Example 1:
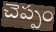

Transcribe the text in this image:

చెప్పం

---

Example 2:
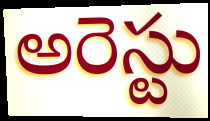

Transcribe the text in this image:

అరెస్టు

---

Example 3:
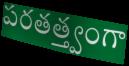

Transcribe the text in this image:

పరతత్త్వంగా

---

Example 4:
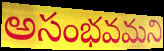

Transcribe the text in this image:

అసంభవమని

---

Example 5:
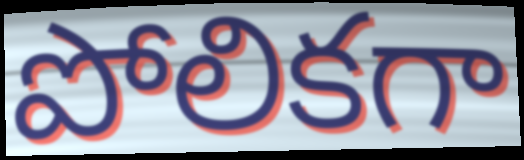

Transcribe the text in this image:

పోలికగా